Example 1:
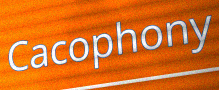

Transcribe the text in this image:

Cacophony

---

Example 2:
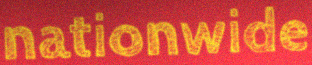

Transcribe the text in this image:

nationwide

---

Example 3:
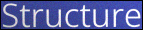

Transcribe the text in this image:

Structure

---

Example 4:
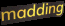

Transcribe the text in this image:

madding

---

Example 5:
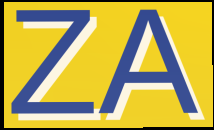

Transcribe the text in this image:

ZA